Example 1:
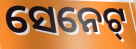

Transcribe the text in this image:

ସେନେଟ୍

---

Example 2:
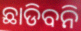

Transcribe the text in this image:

ଛାଡିବନି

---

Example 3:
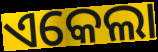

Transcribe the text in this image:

ଏକେଲା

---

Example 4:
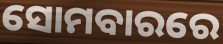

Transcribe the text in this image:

ସୋମବାରରେ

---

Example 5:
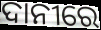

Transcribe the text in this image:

ଦାନୀରେ